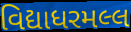
વિદ્યાધરમલ્લ